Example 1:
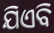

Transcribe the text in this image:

ଯିଏବି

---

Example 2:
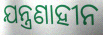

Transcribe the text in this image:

ଯନ୍ତ୍ରଣାହୀନ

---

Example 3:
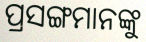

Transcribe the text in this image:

ପ୍ରସଙ୍ଗମାନଙ୍କୁ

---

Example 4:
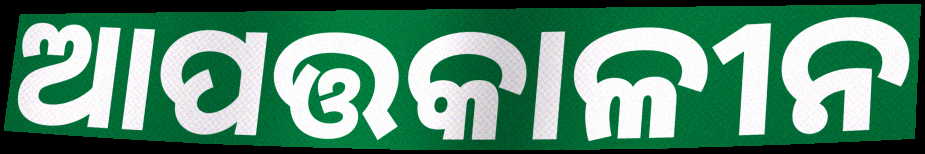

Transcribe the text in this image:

ଆପତ୍ତକାଳୀନ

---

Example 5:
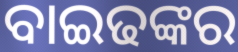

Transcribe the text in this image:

ବାଇଢଙ୍କର